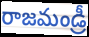
రాజమండ్రీ